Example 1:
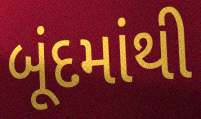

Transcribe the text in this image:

બૂંદમાંથી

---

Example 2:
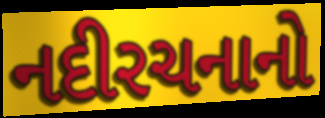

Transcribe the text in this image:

નદીરચનાનો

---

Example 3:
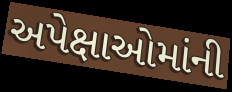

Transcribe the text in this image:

અપેક્ષાઓમાંની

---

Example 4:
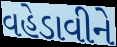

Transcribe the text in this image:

વહેડાવીને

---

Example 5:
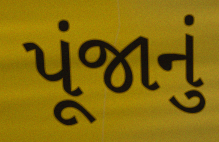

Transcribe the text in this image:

પૂંજાનું